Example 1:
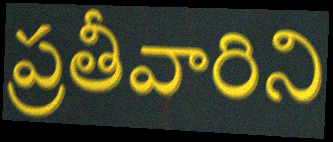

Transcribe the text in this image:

ప్రతీవారిని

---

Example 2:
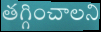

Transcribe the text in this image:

తగ్గించాలని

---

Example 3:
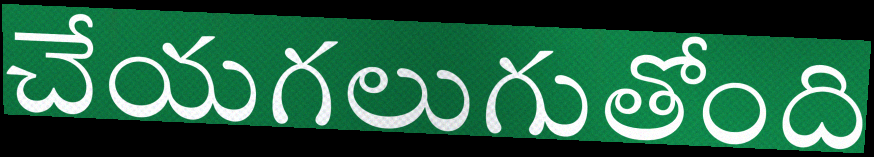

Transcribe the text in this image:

చేయగలుగుతోంది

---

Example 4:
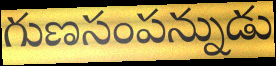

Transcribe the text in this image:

గుణసంపన్నుడు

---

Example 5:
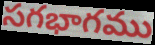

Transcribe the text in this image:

సగభాగము